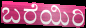
ಬರೆಯಿರಿ